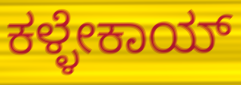
ಕಳ್ಳೇಕಾಯ್